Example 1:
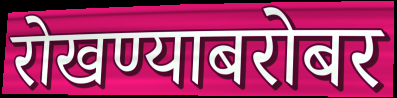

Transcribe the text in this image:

रोखण्याबरोबर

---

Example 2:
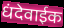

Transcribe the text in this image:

धंदेवाईक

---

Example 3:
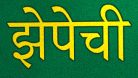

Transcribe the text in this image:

झेपेची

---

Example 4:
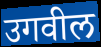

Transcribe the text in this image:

उगवील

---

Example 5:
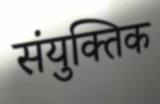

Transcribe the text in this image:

संयुक्तिक